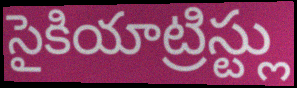
సైకియాట్రిస్ట్లు